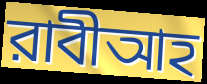
রাবীআহ